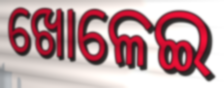
ଖୋଳେଇ